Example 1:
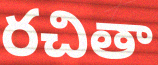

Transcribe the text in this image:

రచితా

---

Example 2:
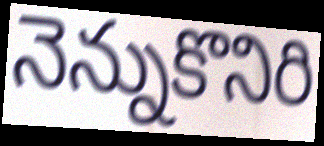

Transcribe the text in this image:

నెన్నుకొనిరి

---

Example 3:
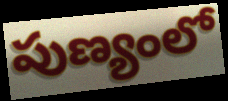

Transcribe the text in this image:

పుణ్యంలో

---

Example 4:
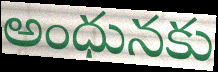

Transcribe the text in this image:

అంధునకు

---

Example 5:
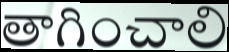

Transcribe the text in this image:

తాగించాలి